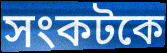
সংকটকে